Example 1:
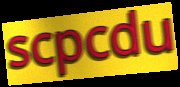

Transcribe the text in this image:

scpcdu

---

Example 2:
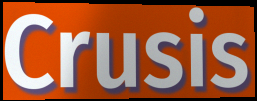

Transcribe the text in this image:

Crusis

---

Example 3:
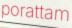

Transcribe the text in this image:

porattam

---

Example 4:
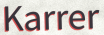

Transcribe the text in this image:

Karrer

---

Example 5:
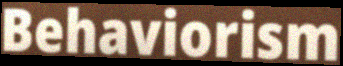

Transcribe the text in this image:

Behaviorism